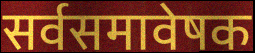
सर्वसमावेषक